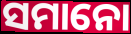
ସମାନୋ